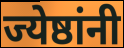
ज्येष्ठांनी